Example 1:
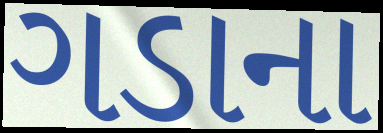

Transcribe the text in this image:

ગડાના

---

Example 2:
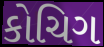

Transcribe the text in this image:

કોચિગ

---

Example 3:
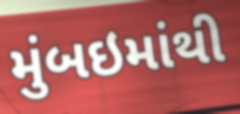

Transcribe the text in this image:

મુંબઇમાંથી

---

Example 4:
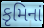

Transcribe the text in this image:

કૃમિનાં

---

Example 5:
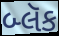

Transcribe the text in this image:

બ્લૅક